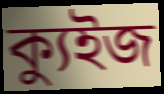
ক্যুইজ